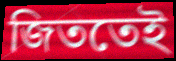
জিততেই